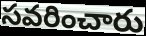
సవరించారు